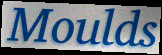
Moulds